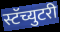
स्टॅच्युटरी